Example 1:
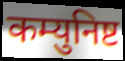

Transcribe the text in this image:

कम्युनिष्ट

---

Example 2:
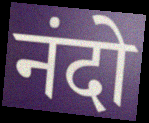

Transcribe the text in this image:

नंदो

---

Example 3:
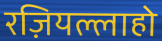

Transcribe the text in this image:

रज़ियल्लाहो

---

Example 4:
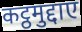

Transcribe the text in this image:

कट्ठमुद्दाए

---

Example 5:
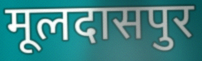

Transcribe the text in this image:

मूलदासपुर